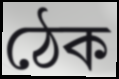
ঠেক